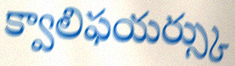
క్వాలిఫయర్స్కు